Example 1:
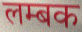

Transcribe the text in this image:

लम्बक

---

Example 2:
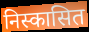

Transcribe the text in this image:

निस्कासित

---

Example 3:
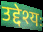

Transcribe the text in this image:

उद्देश्यः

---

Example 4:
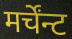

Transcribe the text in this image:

मर्चेंन्ट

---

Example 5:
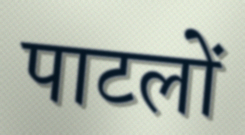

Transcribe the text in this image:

पाटलों